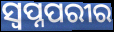
ସ୍ୱପ୍ନପରୀର